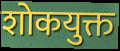
शोकयुक्त